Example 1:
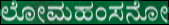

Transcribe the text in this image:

ಲೋಮಹಂಸನೋ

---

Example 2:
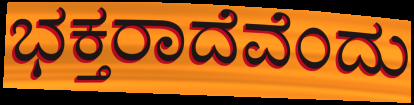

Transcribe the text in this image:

ಭಕ್ತರಾದೆವೆಂದು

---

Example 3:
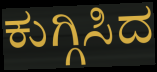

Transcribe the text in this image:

ಕುಗ್ಗಿಸಿದ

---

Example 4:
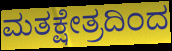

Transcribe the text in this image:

ಮತಕ್ಷೇತ್ರದಿಂದ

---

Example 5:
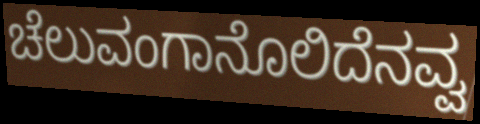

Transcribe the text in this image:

ಚೆಲುವಂಗಾನೊಲಿದೆನವ್ವ